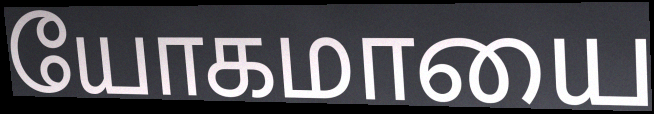
யோகமாயை